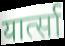
यार्त्सा